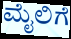
ಮೈಲಿಗೆ